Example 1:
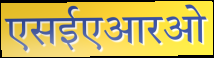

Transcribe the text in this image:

एसईएआरओ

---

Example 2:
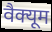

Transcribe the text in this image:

वैक्‍यूम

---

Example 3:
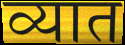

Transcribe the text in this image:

व्यात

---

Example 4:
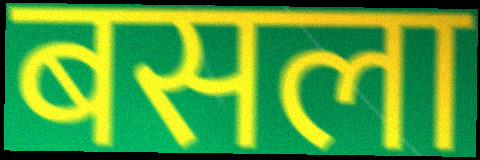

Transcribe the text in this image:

बसला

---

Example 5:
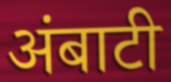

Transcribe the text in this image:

अंबाटी